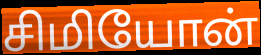
சிமியோன்